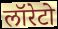
लॉरेटो